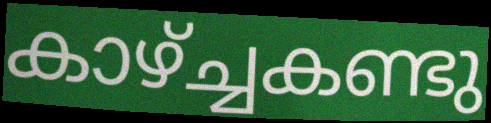
കാഴ്ച്ചകണ്ടു